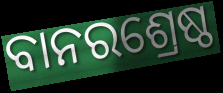
ବାନରଶ୍ରେଷ୍ଠ